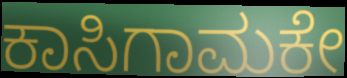
ಕಾಸಿಗಾಮಕೇ